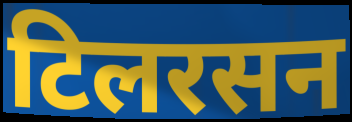
टिलरसन